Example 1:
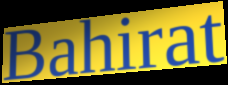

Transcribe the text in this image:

Bahirat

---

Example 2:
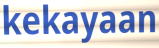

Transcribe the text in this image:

kekayaan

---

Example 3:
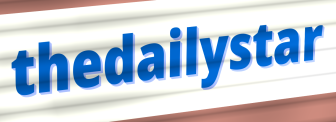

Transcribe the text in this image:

thedailystar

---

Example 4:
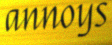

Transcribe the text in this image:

annoys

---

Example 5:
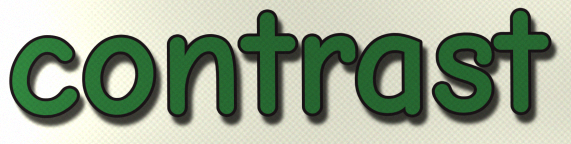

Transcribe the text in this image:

contrast